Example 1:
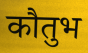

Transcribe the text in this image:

कौतुभ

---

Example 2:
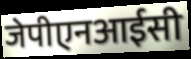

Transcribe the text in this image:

जेपीएनआईसी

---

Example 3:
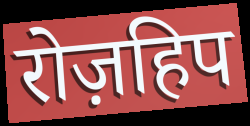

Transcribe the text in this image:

रोज़हिप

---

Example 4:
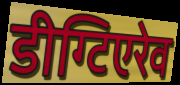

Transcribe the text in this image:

डीग्टिएरेव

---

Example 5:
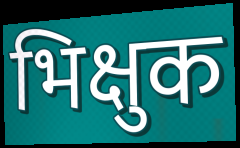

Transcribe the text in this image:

भिक्षुक